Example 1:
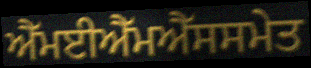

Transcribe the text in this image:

ਐੱਮਈਐੱਮਐੱਸਸਮੇਤ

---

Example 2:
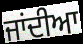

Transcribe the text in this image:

ਜਾਂਦੀਆ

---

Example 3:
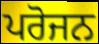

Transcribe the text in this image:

ਪਰੋਜਨ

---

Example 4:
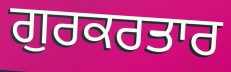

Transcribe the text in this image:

ਗੁਰਕਰਤਾਰ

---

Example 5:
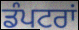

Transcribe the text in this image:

ਡੰਪਟਰਾਂ